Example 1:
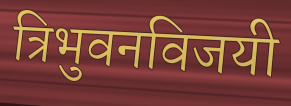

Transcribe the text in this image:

त्रिभुवनविजयी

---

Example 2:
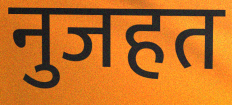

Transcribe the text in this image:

नुजहत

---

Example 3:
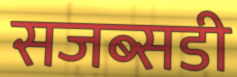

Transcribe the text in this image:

सजब्सडी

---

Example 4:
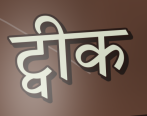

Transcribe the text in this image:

ट्वीक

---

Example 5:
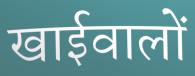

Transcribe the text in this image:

खाईवालों